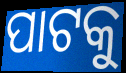
ପାଟକୁ